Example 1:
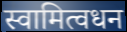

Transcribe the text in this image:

स्वामित्वधन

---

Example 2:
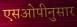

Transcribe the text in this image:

एसओपीनुसार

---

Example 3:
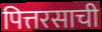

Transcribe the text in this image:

पित्तरसाची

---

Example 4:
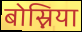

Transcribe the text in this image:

बोस्निया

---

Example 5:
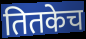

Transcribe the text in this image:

तितकेच